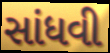
સાંધવી